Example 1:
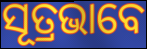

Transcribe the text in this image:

ସୂତ୍ରଭାବେ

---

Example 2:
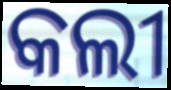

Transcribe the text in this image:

କଲୀ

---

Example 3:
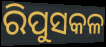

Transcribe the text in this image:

ରିପୁସକଳ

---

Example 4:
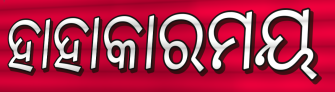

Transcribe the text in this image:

ହାହାକାରମୟ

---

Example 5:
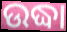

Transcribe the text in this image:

ଉଦ୍ଧା